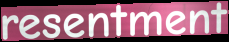
resentment